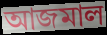
আজমাল